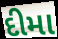
દીમા